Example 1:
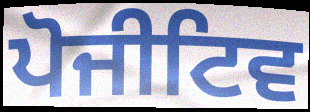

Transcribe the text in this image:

ਪੋਜੀਟਿਵ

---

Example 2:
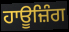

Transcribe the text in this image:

ਹਾਊਜ਼ਿੰਗ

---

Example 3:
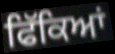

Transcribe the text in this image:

ਫਿੱਕਿਆਂ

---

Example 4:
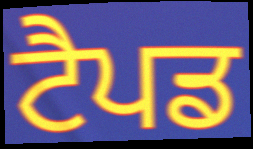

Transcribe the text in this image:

ਟੈਪਡ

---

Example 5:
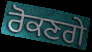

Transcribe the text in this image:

ਰੋਕਣਗੇ